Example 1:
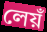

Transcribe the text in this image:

লেয়ঁ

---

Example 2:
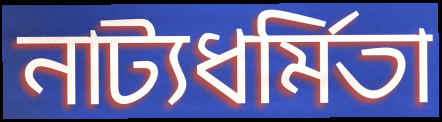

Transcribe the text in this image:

নাট্যধর্মিতা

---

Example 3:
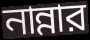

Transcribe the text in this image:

নান্নার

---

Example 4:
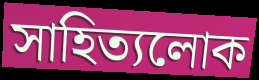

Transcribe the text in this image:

সাহিত্যলোক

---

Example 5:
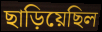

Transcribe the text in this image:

ছাড়িয়েছিল